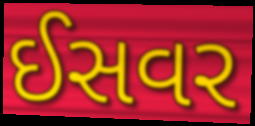
ઈસવર